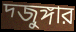
দ্জুঙ্গার